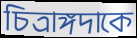
চিত্রাঙ্গদাকে